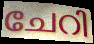
ചേറി